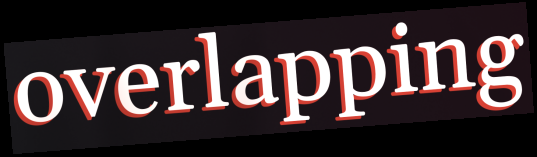
overlapping